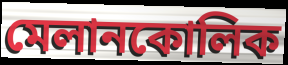
মেলানকোলিক